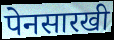
पेनसारखी